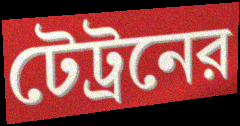
টেট্রনের